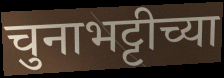
चुनाभट्टीच्या